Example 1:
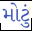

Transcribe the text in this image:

મોટું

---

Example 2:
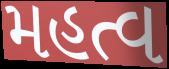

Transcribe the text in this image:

મહત્વ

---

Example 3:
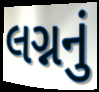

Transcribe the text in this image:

લગ્નનું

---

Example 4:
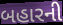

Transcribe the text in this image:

બહારની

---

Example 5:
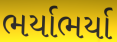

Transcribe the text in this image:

ભર્યાભર્યા